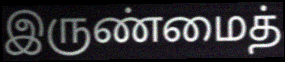
இருண்மைத்